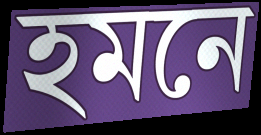
হমনে